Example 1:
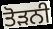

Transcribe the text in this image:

ਤੋੜਨੀ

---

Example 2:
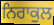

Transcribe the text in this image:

ਨਿਰਾਕੁਲ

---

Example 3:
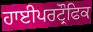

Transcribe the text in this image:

ਹਾਈਪਰਟ੍ਰੌਫਿਕ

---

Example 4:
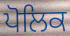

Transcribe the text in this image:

ਪੋਲਿਕ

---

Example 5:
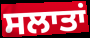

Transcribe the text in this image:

ਸਲਾਤਾਂ